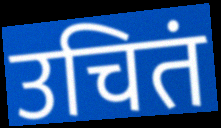
उचितं